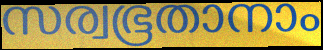
സര്വഭൂതാനാം